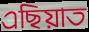
এছিয়াত